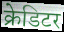
क्रेडिटर